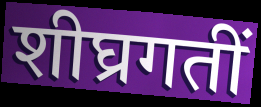
शीघ्रगतीं